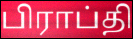
பிராப்தி